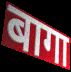
बागा